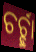
ଚର୍ଚ୍ଛା